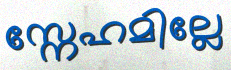
സ്നേഹമില്ലേ